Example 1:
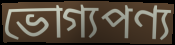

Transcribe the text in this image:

ভোগ্যপণ্য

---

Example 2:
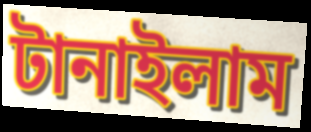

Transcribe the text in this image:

টানাইলাম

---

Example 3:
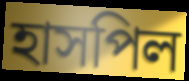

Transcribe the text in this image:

হাসপিল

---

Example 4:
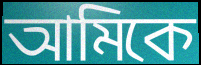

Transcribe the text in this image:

আমিকে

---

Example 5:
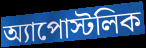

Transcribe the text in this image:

অ্যাপোস্টলিক